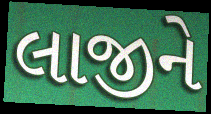
લાજીને